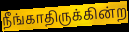
நீங்காதிருக்கின்ற